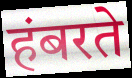
हंबरते